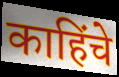
काहिंचे